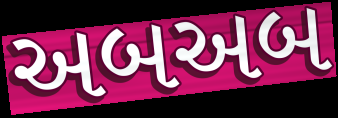
અબઅબ